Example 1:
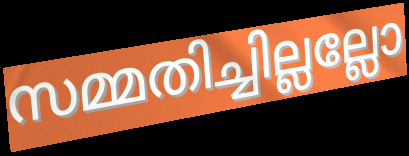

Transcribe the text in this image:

സമ്മതിച്ചില്ലല്ലോ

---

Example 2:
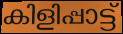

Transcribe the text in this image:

കിളിപ്പാട്ട്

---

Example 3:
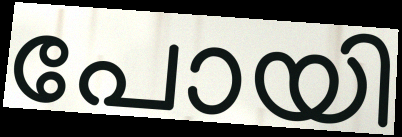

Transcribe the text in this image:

പോയി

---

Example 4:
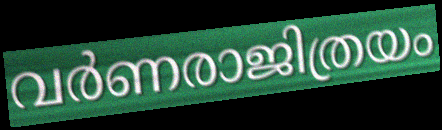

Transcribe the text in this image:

വർണരാജിത്രയം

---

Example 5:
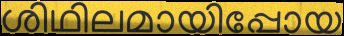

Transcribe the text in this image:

ശിഥിലമായിപ്പോയ